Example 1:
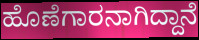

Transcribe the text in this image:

ಹೊಣೆಗಾರನಾಗಿದ್ದಾನೆ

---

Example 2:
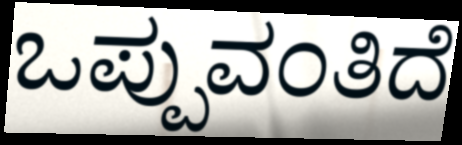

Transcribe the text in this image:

ಒಪ್ಪುವಂತಿದೆ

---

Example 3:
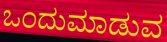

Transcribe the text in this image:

ಒಂದುಮಾಡುವ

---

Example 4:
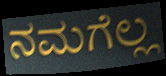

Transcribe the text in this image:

ನಮಗೆಲ್ಲ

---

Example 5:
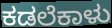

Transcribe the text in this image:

ಕಡಲೆಕಾಳು